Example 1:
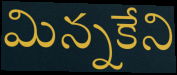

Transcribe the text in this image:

మిన్నకేని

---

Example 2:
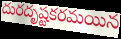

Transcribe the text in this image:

దురదృష్టకరమయిన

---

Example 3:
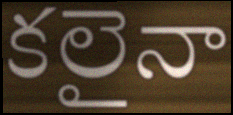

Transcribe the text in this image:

కలైనా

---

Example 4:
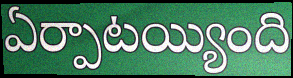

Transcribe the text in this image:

ఏర్పాటయ్యింది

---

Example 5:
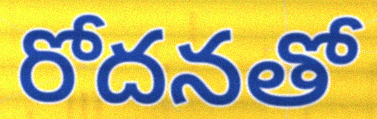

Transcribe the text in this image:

రోదనతో